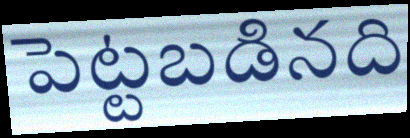
పెట్టబడినది